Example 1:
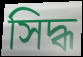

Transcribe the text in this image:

সিদ্ধ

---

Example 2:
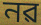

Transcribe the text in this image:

নৱ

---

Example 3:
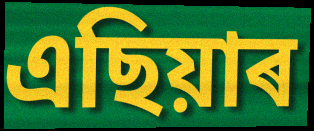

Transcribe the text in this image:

এছিয়াৰ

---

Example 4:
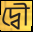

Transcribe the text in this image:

দ্বৌ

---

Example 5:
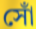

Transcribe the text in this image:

সোঁ